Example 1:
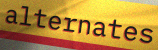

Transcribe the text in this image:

alternates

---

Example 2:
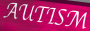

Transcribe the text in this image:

AUTISM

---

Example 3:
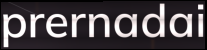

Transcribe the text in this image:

prernadai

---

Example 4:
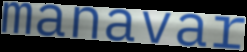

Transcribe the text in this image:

manavar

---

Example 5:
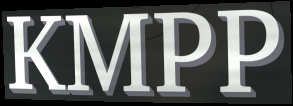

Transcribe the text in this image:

KMPP